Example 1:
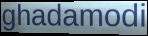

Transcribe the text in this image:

ghadamodi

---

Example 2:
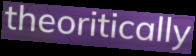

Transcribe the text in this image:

theoritically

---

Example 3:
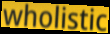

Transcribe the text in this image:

wholistic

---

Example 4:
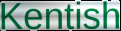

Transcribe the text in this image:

Kentish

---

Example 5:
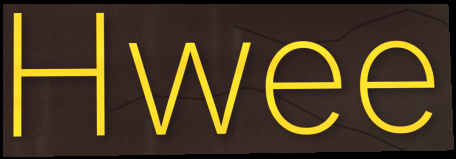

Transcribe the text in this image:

Hwee